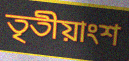
তৃতীয়াংশ